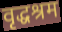
वृद्धश्रम